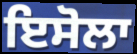
ਇਸੋਲਾ